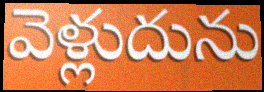
వెళ్లుదును